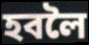
হবলৈ